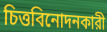
চিত্তবিনোদনকারী